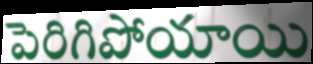
పెరిగిపోయాయి